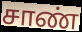
சாண்